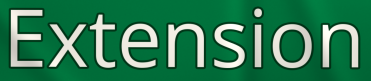
Extension